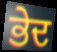
ਭੇਦ